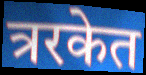
त्ररकेत